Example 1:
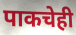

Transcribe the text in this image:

पाकचेही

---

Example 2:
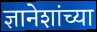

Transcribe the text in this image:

ज्ञानेशांच्या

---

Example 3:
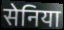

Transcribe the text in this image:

सेनिया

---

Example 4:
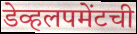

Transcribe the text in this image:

डेव्हलपमेंटची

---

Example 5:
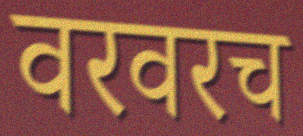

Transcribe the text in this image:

वरवरच